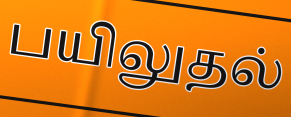
பயிலுதல்